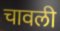
चावली